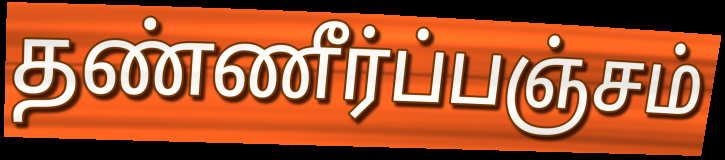
தண்ணீர்ப்பஞ்சம்